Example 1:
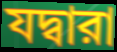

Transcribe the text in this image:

যদ্বারা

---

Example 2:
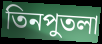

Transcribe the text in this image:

তিনপুতলা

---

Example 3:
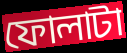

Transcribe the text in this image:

ফোলাটা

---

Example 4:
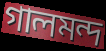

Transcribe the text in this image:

গালমন্দ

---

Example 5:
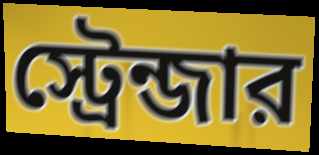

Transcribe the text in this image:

স্ট্রেন্জার